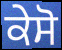
ਕੇਸੋ